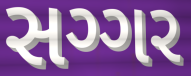
સગ્ગર